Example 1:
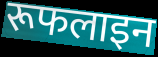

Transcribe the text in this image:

रूफलाइन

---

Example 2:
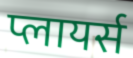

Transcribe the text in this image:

प्लायर्स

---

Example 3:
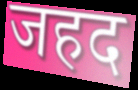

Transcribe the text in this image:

जहद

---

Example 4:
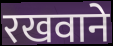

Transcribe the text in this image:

रखवाने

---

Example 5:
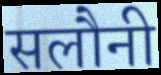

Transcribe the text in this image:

सलौनी